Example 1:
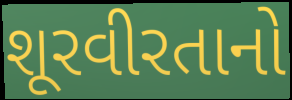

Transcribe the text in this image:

શૂરવીરતાનો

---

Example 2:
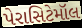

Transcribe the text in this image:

પેરાસિટેમૉલ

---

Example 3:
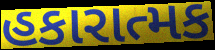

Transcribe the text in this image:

હકારાત્મક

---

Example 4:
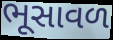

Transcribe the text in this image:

ભૂસાવળ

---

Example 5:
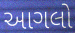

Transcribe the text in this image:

આગલો